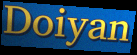
Doiyan